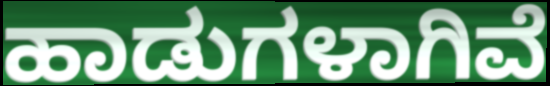
ಹಾಡುಗಳಾಗಿವೆ